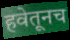
हवेतूनच